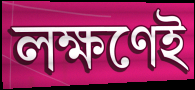
লক্ষণেই